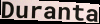
Duranta